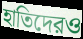
হাতিদেরও